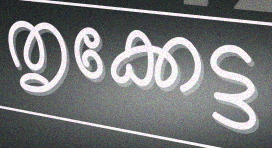
തൃക്കേട്ട